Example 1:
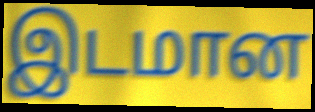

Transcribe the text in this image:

இடமான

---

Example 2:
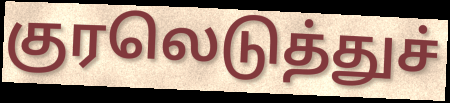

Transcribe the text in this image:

குரலெடுத்துச்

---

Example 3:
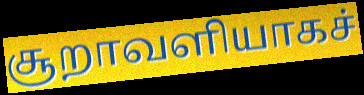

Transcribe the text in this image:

சூறாவளியாகச்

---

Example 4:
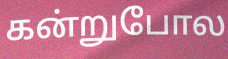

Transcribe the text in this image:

கன்றுபோல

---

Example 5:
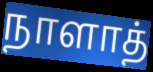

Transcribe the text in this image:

நாளாத்